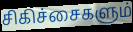
சிகிச்சைகளும்